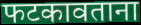
फटकावताना